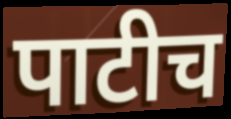
पाटीच